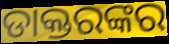
ଡାକ୍ତରଙ୍କର